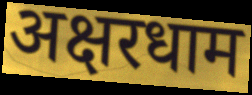
अक्षरधाम